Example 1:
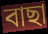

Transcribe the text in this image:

বাছা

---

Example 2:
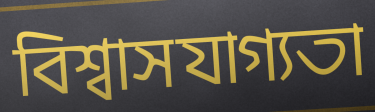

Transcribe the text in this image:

বিশ্বাসযাগ্যতা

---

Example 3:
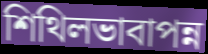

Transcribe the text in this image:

শিথিলভাবাপন্ন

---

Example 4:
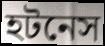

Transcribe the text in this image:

হটনেস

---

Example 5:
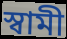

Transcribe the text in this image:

স্বামী